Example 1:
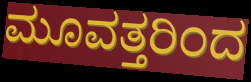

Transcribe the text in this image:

ಮೂವತ್ತರಿಂದ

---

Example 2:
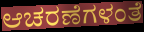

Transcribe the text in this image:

ಆಚರಣೆಗಳಂತೆ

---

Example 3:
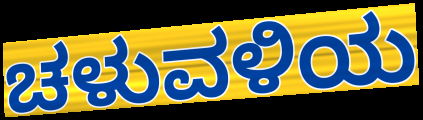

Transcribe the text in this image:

ಚಳುವಳಿಯ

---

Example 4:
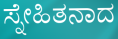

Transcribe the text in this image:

ಸ್ನೇಹಿತನಾದ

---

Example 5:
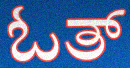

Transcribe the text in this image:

ಓತ್